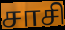
சாசி